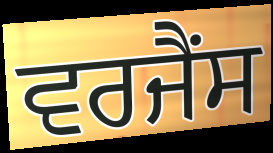
ਵਰਜੈਂਸ